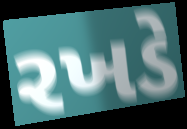
રખડે